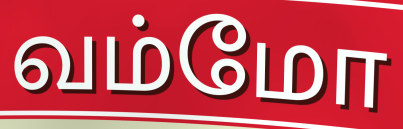
வம்மோ